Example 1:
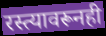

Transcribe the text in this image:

रस्त्यावरूनही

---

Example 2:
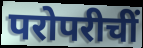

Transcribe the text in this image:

परोपरीचीं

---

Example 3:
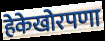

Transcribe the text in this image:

हेकेखोरपणा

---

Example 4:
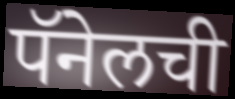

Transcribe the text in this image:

पॅनेलची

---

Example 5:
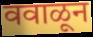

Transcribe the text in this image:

ववाळून